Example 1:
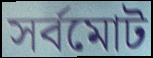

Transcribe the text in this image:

সর্বমোট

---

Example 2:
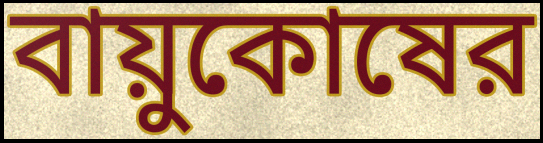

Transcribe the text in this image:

বায়ুকোষের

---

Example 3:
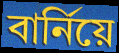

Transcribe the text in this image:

বার্নিয়ে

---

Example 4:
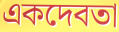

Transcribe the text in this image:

একদেবতা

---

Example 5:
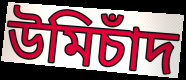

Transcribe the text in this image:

উমিচাঁদ